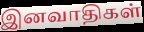
இனவாதிகள்